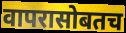
वापरासोबतच